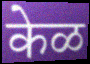
केळ